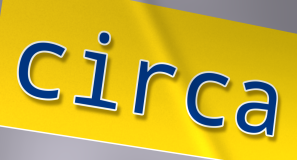
circa